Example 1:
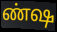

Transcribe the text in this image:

ண்ஷ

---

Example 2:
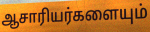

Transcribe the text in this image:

ஆசாரியர்களையும்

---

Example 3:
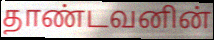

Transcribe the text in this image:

தாண்டவனின்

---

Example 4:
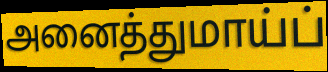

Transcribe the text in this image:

அனைத்துமாய்ப்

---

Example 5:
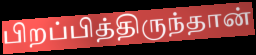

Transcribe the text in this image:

பிறப்பித்திருந்தான்